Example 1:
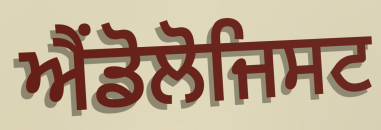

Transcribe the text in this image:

ਐਂਡੋਲੋਜਿਸਟ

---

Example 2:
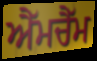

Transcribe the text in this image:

ਐੱਮਚੈੱਮ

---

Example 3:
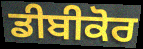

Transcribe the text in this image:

ਡੀਬੀਕੋਰ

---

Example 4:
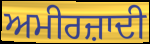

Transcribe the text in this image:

ਅਮੀਰਜ਼ਾਦੀ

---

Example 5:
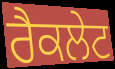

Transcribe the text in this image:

ਰੈਕਲੇਟ